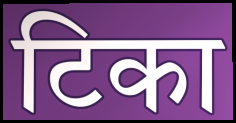
टिका